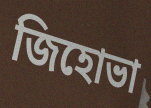
জিহোভা